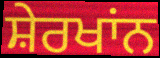
ਸ਼ੇਰਖਾਂਨ